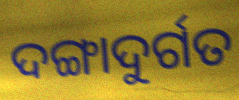
ଦଙ୍ଗାଦୁର୍ଗତ